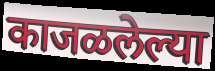
काजळलेल्या